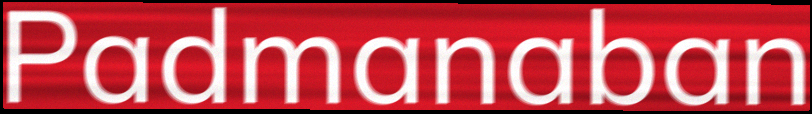
Padmanaban